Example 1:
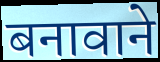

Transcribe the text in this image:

बनावाने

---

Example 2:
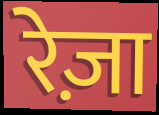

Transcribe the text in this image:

रेज़ा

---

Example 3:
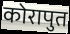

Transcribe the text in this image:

कोरापुत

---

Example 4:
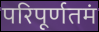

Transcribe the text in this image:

परिपूर्णतमं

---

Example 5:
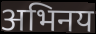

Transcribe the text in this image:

अभिनय